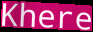
Khere